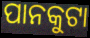
ପାନକୁଟା